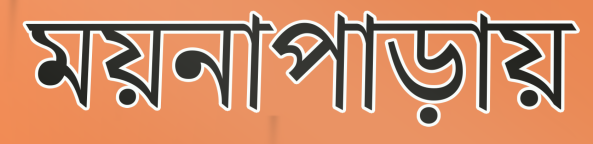
ময়নাপাড়ায়